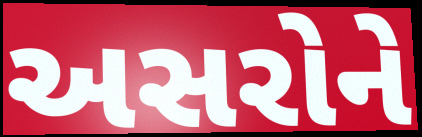
અસરોને